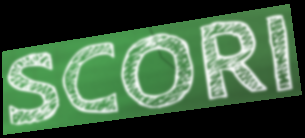
SCORI